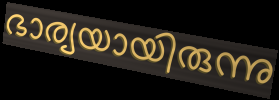
ഭാര്യയായിരുന്നു